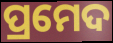
ପ୍ରମେଦ